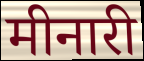
मीनारी